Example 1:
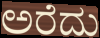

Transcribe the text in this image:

ಅರೆದು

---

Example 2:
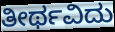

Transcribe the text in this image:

ತೀರ್ಥವಿದು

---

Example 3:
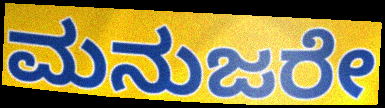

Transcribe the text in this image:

ಮನುಜರೇ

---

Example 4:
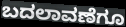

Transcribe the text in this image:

ಬದಲಾವಣೆಗೂ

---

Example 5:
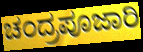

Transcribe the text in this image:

ಚಂದ್ರಪೂಜಾರಿ